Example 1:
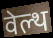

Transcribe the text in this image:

वेल्‍थ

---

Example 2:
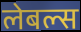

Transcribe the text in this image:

लेबल्स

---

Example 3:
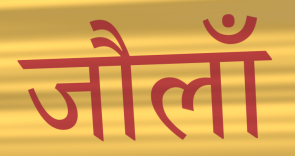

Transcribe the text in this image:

जौलाँ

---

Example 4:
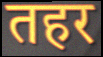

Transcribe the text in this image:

तहर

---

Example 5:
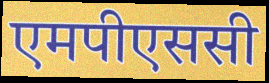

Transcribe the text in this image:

एमपीएससी